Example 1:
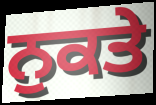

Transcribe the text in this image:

ਨੁਕਤੇ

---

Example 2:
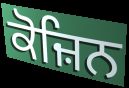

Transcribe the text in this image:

ਕੋਜ਼ਿਨ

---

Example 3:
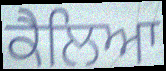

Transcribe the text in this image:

ਕੈਲਿਆ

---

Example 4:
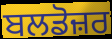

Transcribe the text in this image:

ਬਲਡੋਜ਼ਰ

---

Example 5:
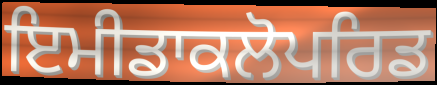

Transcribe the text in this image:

ਇਮੀਡਾਕਲੋਪਰਿਡ